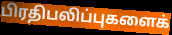
பிரதிபலிப்புகளைக்